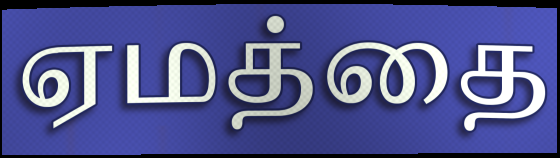
ஏமத்தை